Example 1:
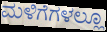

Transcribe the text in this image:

ಮಳಿಗೆಗಳಲ್ಲೂ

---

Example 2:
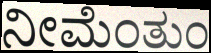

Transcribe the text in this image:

ನೀಮೆಂತುಂ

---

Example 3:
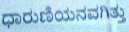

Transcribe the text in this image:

ಧಾರುಣಿಯನವಗಿತ್ತು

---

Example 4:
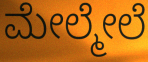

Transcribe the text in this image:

ಮೇಲ್ಮೇಲೆ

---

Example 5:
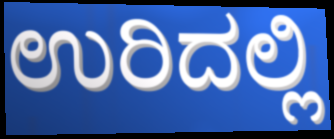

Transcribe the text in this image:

ಉರಿದಲ್ಲಿ